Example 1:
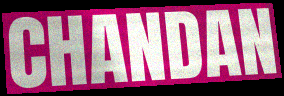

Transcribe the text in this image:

CHANDAN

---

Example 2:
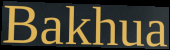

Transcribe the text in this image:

Bakhua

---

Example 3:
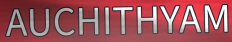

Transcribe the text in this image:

AUCHITHYAM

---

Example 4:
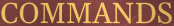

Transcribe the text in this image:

COMMANDS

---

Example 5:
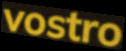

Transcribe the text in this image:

vostro